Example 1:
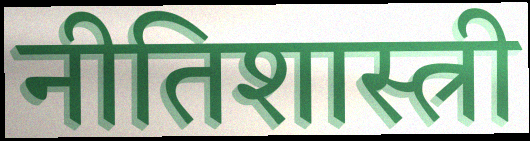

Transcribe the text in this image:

नीतिशास्त्री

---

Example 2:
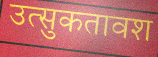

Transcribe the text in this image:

उत्सुकतावश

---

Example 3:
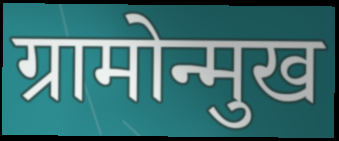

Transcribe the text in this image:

ग्रामोन्मुख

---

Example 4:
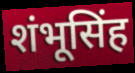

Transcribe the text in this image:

शंभूसिंह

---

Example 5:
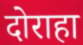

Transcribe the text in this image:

दोराहा